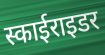
स्काईराइडर